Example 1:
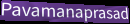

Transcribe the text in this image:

Pavamanaprasad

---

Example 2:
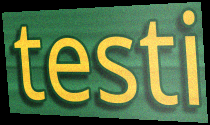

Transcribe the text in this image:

testi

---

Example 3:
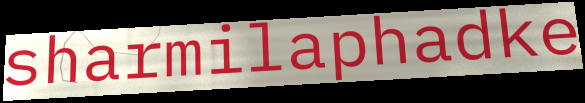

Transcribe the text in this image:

sharmilaphadke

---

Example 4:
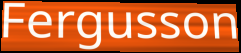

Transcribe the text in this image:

Fergusson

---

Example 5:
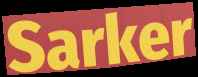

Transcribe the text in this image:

Sarker